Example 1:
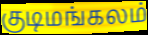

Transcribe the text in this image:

குடிமங்கலம்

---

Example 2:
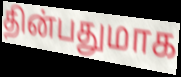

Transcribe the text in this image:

தின்பதுமாக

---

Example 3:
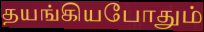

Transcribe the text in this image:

தயங்கியபோதும்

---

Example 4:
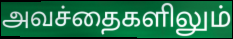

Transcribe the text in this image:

அவச்தைகளிலும்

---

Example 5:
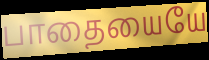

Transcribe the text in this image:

பாதையையே